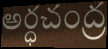
అర్ధచంద్ర